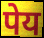
पेय